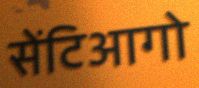
सेंटिआगो